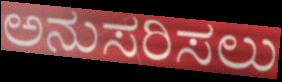
ಅನುಸರಿಸಲು